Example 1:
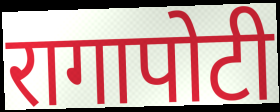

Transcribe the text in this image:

रागापोटी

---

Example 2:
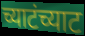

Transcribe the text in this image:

च्याटंच्याट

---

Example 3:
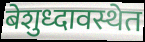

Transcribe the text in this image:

बेशुध्दावस्थेत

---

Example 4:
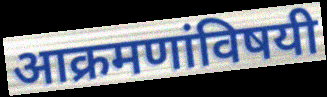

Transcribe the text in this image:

आक्रमणांविषयी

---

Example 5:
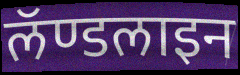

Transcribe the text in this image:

लॅण्डलाइन